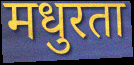
मधुरता